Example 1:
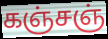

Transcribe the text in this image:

கஞ்சஞ்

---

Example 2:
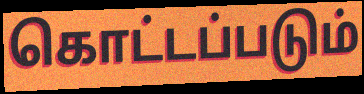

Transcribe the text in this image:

கொட்டப்படும்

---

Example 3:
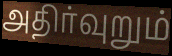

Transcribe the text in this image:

அதிர்வுறும்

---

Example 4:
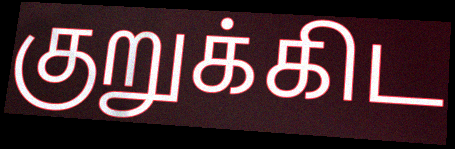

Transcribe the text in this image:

குறுக்கிட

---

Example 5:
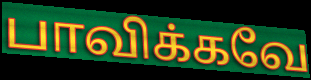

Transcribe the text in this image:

பாவிக்கவே